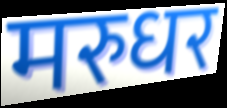
मरुधर